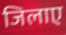
जिलाए